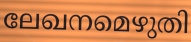
ലേഖനമെഴുതി